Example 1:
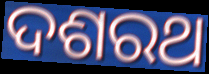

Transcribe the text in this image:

ଦଶରଥ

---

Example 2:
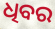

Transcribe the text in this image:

ଧିବର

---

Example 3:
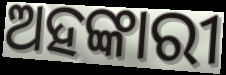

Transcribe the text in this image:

ଅହଙ୍କାରୀ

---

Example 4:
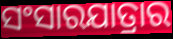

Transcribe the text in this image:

ସଂସାରଯାତ୍ରାର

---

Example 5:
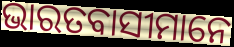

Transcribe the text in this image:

ଭାରତବାସୀମାନେ